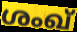
ശംഖ്